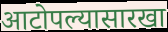
आटोपल्यासारखा